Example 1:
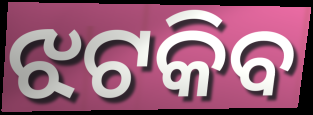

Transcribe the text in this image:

ଝଟକିବ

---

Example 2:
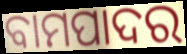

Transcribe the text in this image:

ବାମପାଦର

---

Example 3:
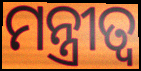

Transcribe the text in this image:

ମନ୍ତ୍ରୀତ୍ୱ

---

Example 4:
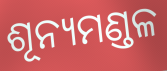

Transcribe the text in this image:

ଶୂନ୍ୟମଣ୍ଡଳ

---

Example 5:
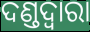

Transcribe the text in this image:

ଦଣ୍ଡଦ୍ବାରା